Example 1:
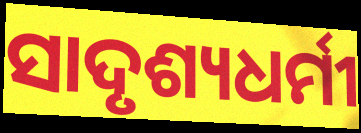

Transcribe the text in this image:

ସାଦୃଶ୍ୟଧର୍ମୀ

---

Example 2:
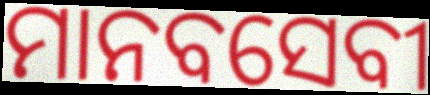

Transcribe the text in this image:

ମାନବସେବୀ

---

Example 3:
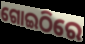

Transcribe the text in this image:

ଗୋଇଠିରେ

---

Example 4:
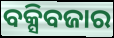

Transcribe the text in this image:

ବକ୍ସିବଜାର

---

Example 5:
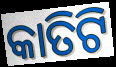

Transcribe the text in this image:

କାତିଟି